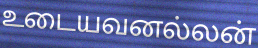
உடையவனல்லன்